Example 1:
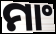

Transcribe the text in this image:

ମାଂ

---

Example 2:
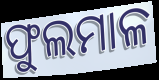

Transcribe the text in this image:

ଫୁଲମାଳ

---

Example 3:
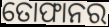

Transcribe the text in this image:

ତୋଫାନର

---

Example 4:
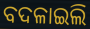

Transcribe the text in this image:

ବଦଳାଇଲି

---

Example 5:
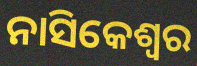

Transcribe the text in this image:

ନାସିକେଶ୍ୱର